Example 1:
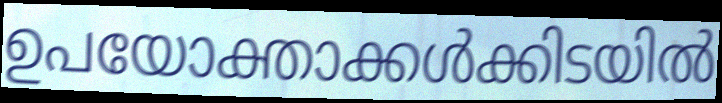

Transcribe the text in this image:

ഉപയോക്താക്കൾക്കിടയിൽ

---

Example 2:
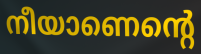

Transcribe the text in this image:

നീയാണെന്റെ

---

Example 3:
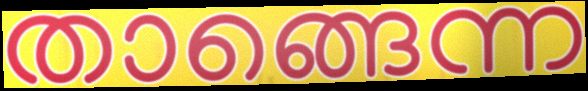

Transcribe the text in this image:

താങ്ങെന്ന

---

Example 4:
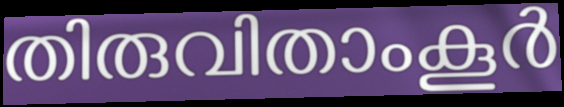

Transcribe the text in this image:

തിരുവിതാംകൂർ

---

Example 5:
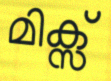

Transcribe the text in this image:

മിക്സ്